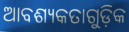
ଆବଶ୍ୟକତାଗୁଡ଼ିକ